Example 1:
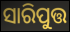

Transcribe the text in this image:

ସାରିପୁତ୍ତ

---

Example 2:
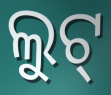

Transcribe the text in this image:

ଲୁଟ୍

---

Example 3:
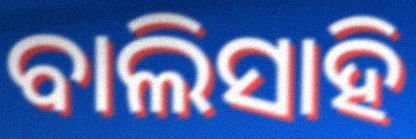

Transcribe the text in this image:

ବାଲିସାହି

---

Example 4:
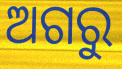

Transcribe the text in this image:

ଅଗରୁ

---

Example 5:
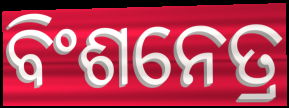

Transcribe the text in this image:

ବିଂଶନେତ୍ର